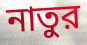
নাতুর